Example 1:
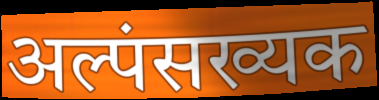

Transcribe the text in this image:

अल्पंसख्यक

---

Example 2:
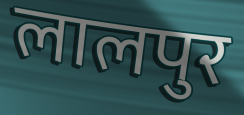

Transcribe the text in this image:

लालपुर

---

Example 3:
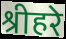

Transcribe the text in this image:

श्रीहरे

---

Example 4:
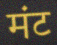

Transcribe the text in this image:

मंट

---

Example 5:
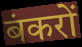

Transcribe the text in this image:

बंकरों